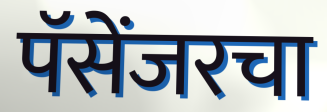
पॅसेंजरचा